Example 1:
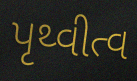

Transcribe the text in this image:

પૃથ્વીત્વ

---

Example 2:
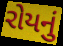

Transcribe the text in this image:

રોયનું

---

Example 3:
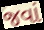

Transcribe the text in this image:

જવાં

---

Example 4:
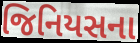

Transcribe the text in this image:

જિનિયસના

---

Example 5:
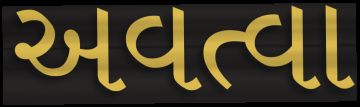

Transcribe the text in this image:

અવત્વા